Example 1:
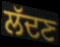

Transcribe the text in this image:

ਲੱਦਣ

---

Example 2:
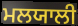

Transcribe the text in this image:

ਮਲਯਾਲੀ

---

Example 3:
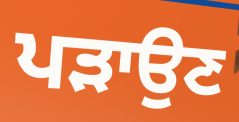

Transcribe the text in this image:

ਪੜਾਉਣ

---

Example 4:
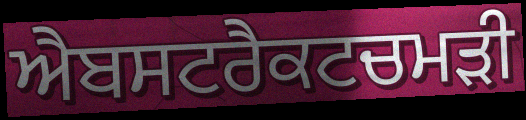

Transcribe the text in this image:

ਐਬਸਟਰੈਕਟਚਮੜੀ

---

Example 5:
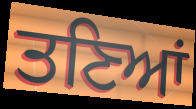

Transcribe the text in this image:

ਤਣਿਆਂ